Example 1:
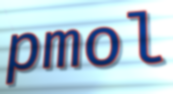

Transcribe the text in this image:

pmol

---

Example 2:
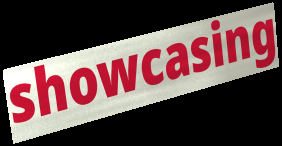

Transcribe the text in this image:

showcasing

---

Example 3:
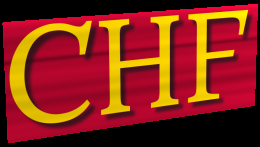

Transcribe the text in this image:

CHF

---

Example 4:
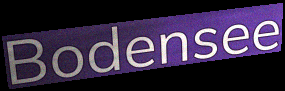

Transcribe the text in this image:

Bodensee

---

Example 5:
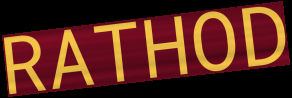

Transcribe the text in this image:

RATHOD